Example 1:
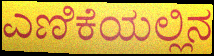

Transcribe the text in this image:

ಎಣಿಕೆಯಲ್ಲಿನ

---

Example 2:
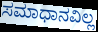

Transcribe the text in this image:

ಸಮಾಧಾನವಿಲ್ಲ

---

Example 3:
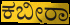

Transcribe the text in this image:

ಕಬೀರಾ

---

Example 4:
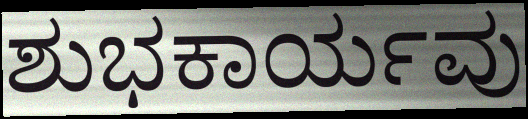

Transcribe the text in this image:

ಶುಭಕಾರ್ಯವು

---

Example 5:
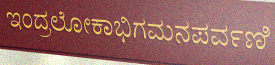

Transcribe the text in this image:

ಇಂದ್ರಲೋಕಾಭಿಗಮನಪರ್ವಣಿ